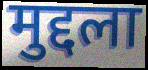
मुद्दला